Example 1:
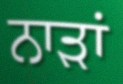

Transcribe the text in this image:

ਨਾੜਾਂ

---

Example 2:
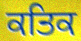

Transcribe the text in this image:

ਕਤਿਕ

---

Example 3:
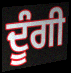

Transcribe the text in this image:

ਦੂੰਗੀ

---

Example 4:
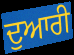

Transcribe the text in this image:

ਦੁਆਰੀ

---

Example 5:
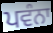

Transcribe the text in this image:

ਪਵੰਨਾ